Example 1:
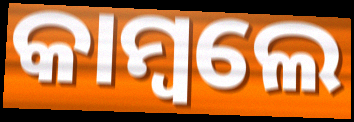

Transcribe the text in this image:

କାମ୍ବଲେ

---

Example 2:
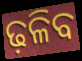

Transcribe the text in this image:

ଢ଼ଳିବ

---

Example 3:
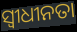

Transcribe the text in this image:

ସ୍ୱୀଧୀନତା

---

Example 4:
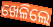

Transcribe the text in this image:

ଖେଳିଲେ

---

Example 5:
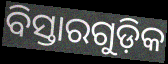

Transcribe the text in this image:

ବିସ୍ତାରଗୁଡ଼ିକ